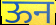
ऊन